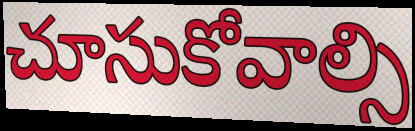
చూసుకోవాల్సి